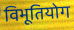
विभूतियोग